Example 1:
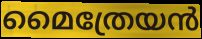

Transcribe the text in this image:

മൈത്രേയൻ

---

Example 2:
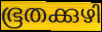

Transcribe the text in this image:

ഭൂതക്കുഴി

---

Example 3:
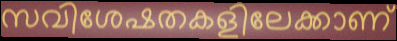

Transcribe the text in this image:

സവിശേഷതകളിലേക്കാണ്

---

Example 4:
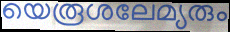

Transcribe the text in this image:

യെരൂശലേമ്യരും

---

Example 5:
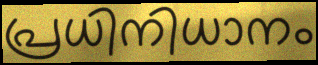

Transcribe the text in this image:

പ്രധിനിധാനം